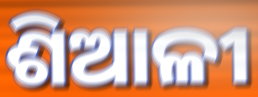
ଶିଆଳୀ